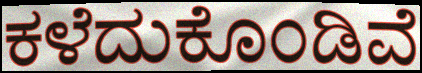
ಕಳೆದುಕೊಂಡಿವೆ